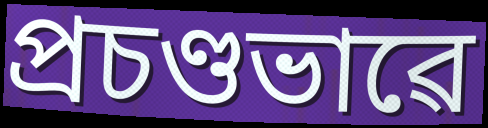
প্ৰচণ্ডভাৱে